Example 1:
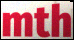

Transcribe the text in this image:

mth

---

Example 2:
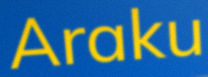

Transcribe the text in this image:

Araku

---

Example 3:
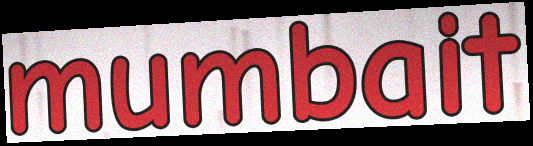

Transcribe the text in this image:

mumbait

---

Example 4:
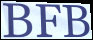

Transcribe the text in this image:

BFB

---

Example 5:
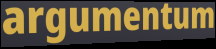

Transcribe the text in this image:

argumentum